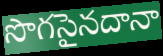
సొగసైనదానా